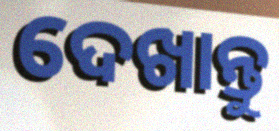
ଦେଖାନ୍ତୁ